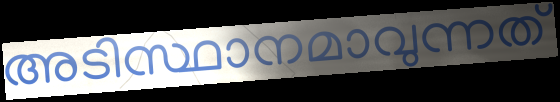
അടിസ്ഥാനമാവുന്നത്